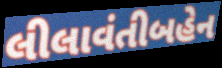
લીલાવંતીબહેન